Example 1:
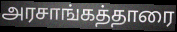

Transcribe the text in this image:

அரசாங்கத்தாரை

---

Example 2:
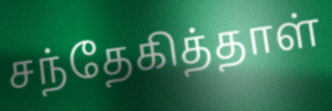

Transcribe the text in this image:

சந்தேகித்தாள்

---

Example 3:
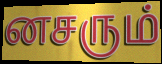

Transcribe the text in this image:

னசரும்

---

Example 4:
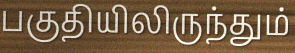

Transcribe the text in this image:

பகுதியிலிருந்தும்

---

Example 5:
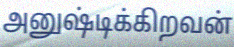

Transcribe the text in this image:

அனுஷ்டிக்கிறவன்